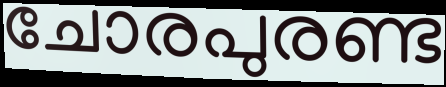
ചോരപുരണ്ട